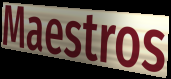
Maestros